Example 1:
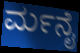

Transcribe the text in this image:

ರ್ಮನೈ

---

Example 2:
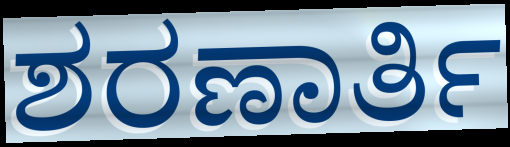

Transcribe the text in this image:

ಶರಣಾರ್ತಿ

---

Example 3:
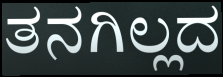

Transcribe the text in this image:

ತನಗಿಲ್ಲದ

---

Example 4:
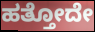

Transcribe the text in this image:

ಹತ್ತೋದೇ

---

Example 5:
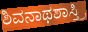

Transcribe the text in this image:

ಶಿವನಾಥಶಾಸ್ತ್ರಿ